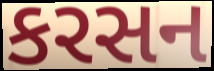
કરસન